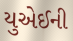
યુએઈની